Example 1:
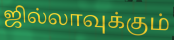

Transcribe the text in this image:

ஜில்லாவுக்கும்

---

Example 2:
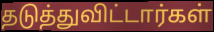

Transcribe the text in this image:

தடுத்துவிட்டார்கள்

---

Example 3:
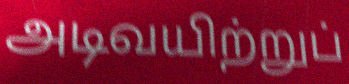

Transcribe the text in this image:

அடிவயிற்றுப்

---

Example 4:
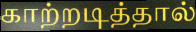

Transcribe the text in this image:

காற்றடித்தால்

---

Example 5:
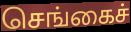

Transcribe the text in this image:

செங்கைச்